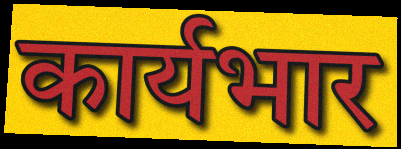
कार्यभार